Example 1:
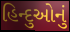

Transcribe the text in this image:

હિન્દુઓનું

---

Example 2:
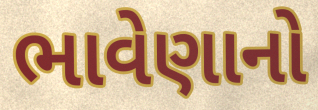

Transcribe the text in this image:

ભાવેણાનો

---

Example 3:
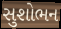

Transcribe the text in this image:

સુશોભન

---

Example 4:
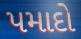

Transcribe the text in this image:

પમાદો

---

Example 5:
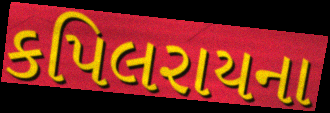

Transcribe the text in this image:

કપિલરાયના